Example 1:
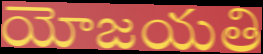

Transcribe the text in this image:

యోజయతి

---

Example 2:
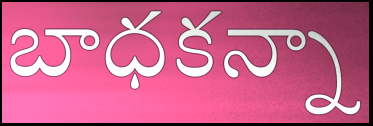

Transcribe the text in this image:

బాధకన్నా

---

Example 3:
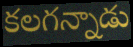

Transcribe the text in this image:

కలగన్నాడు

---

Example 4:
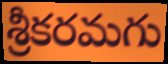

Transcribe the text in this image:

శ్రీకరమగు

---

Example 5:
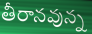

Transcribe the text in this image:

తీరానవున్న